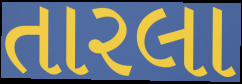
તારલા